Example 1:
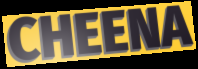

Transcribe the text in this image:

CHEENA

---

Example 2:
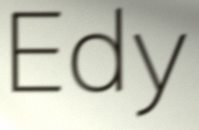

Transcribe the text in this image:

Edy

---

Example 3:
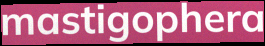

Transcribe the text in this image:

mastigophera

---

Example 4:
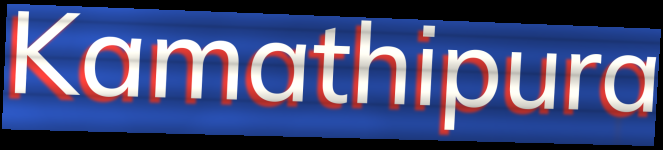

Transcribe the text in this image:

Kamathipura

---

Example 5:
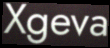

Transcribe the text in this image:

Xgeva